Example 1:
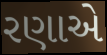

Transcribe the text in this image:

રણાએ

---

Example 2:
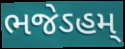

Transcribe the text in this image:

ભજેઽહમ્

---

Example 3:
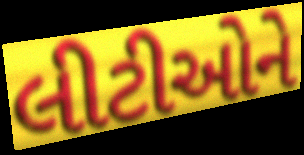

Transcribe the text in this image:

લીટીઓને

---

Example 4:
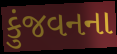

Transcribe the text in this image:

કુંજવનના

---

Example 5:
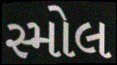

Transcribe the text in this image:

સ્મોલ